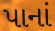
પાનાં